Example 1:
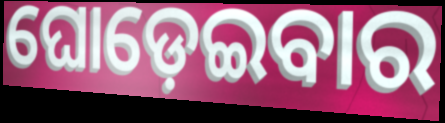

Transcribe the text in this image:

ଘୋଡ଼େଇବାର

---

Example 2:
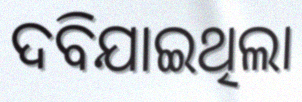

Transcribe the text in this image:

ଦବିଯାଇଥିଲା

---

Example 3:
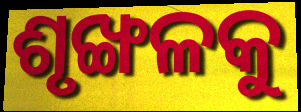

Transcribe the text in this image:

ଶୃଙ୍ଖଳକୁ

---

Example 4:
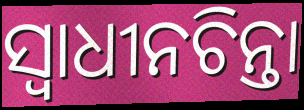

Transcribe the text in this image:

ସ୍ଵାଧୀନଚିନ୍ତା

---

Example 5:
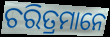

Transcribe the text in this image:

ଚରିତ୍ରମାନେ